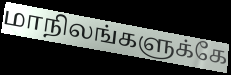
மாநிலங்களுக்கே